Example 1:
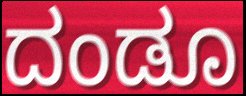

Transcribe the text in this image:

ದಂಡೂ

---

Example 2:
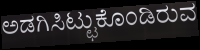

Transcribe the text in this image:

ಅಡಗಿಸಿಟ್ಟುಕೊಂಡಿರುವ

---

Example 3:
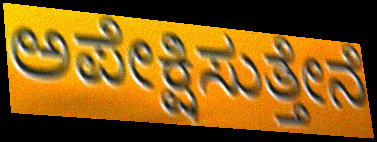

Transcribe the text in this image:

ಅಪೇಕ್ಷಿಸುತ್ತೇನೆ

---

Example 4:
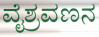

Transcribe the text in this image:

ವೈಶ್ರವಣನ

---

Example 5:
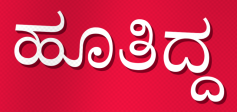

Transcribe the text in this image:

ಹೂತಿದ್ದ